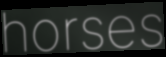
horses